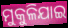
ମୁକୁଳିଯାଇ